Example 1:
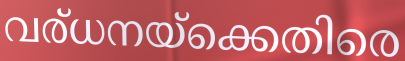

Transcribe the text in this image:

വര്ധനയ്ക്കെതിരെ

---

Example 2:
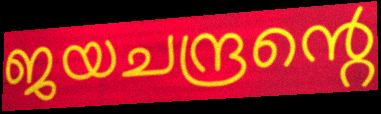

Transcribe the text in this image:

ജയചന്ദ്രന്റെ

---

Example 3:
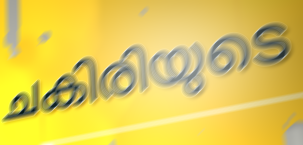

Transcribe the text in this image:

ചകിരിയുടെ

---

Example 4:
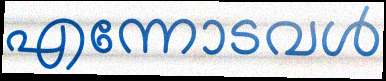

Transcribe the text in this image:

എന്നോടവൾ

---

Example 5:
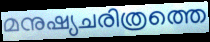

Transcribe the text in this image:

മനുഷ്യചരിത്രത്തെ